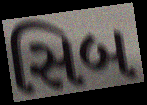
સિબ